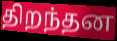
திறந்தன